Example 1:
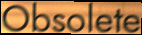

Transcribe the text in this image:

Obsolete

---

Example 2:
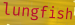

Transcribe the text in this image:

lungfish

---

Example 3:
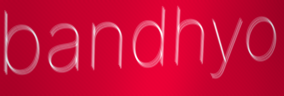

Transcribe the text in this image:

bandhyo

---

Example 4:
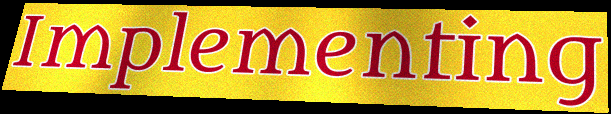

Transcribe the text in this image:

Implementing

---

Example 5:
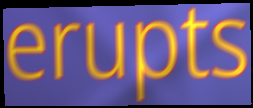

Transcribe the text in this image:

erupts